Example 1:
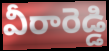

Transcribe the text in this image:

వీరారెడ్డి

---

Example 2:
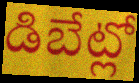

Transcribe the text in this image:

డిబేట్లో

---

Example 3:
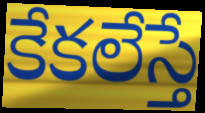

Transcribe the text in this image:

కేకలేస్తే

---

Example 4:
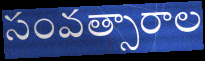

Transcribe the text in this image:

సంవత్సారాల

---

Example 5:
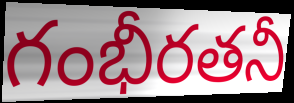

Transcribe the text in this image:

గంభీరతనీ